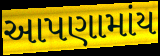
આપણામાંય